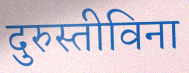
दुरुस्तीविना